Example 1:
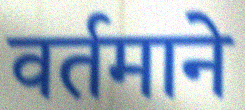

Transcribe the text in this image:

वर्तमाने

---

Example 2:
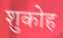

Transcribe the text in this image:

शुकोह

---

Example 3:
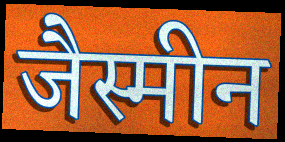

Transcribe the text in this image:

जैस्मीन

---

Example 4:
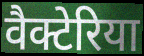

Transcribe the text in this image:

वैक्टेरिया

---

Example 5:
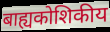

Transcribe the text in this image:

बाह्यकोशिकीय